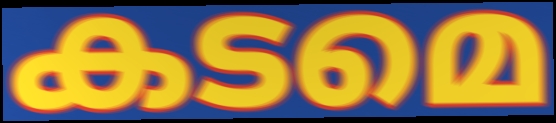
കടമെ